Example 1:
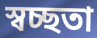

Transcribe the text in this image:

স্বচ্ছতা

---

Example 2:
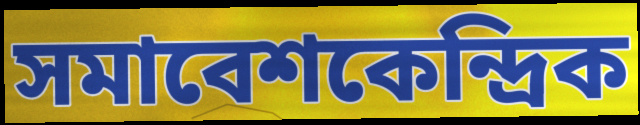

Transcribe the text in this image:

সমাবেশকেন্দ্রিক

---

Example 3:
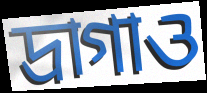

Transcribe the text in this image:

দ্রাগাও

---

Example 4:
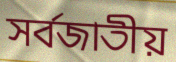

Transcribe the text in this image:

সর্বজাতীয়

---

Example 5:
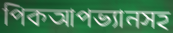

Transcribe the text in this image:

পিকআপভ্যানসহ